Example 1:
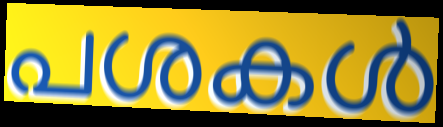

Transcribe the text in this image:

പശകൾ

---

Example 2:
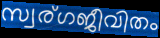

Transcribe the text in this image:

സ്വര്ഗജീവിതം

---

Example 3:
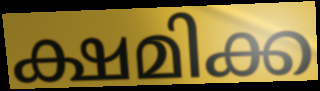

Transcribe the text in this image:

ക്ഷമിക്ക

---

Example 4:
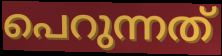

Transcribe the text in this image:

പെറുന്നത്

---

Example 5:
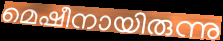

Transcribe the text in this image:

മെഷീനായിരുന്നു